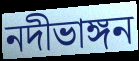
নদীভাঙ্গন